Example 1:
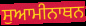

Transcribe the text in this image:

ਸੁਆਮੀਨਾਥਨ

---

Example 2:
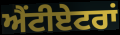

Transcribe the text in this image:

ਐਂਟੀਏਟਰਾਂ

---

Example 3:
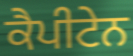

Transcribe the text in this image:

ਕੈਪੀਟੇਨ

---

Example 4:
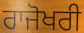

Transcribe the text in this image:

ਰਾਜੋਖਰੀ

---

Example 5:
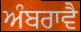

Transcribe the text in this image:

ਅੰਬਰਾਵੈ